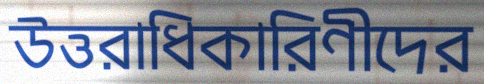
উত্তরাধিকারিণীদের